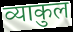
व्याकुल